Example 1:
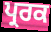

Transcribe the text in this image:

ਪ੍ਰਰਕ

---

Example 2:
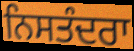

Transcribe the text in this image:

ਨਿਸਤੰਦਰਾ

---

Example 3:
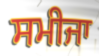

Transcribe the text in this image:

ਸਮੀਜਾ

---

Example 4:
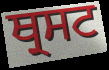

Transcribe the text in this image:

ਥ੍ਰਸਟ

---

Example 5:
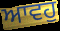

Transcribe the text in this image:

ਆਵਹੁ